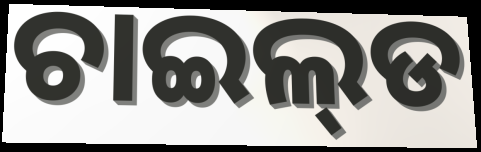
ଚାଇଲ୍‌ଡ